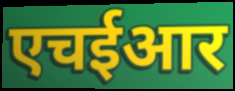
एचईआर